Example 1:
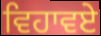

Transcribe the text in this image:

ਵਿਹਾਵਏ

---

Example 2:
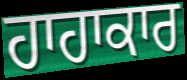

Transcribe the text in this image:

ਹਾਹਾਕਾਰ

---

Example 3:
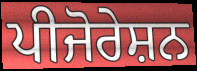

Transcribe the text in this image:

ਪੀਜੋਰੇਸ਼ਨ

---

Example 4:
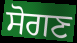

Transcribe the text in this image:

ਸੋਗਣ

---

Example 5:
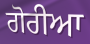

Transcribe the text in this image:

ਗੋਰੀਆ